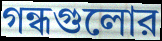
গন্ধগুলোর